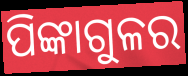
ପିଙ୍କାଗୁଳର